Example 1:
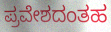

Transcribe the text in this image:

ಪ್ರವೇಶದಂತಹ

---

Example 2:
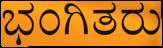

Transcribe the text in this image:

ಭಂಗಿತರು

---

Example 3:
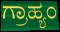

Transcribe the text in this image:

ಗ್ರಾಹ್ಯಂ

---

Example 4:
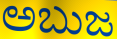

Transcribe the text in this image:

ಅಬುಜ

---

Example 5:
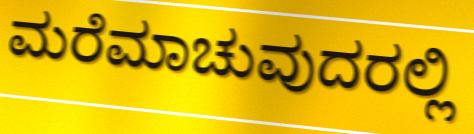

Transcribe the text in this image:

ಮರೆಮಾಚುವುದರಲ್ಲಿ